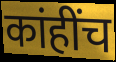
कांहींच